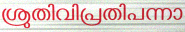
ശ്രുതിവിപ്രതിപന്നാ